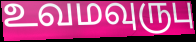
உவமவுருபு